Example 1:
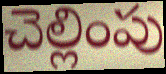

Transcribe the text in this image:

చెల్లింపు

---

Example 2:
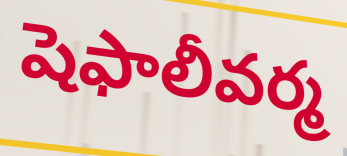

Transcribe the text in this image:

షెఫాలీవర్మ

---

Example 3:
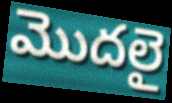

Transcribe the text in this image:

మొదలై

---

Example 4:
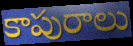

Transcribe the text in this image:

కాపురాలు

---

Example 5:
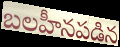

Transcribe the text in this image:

బలహీనపడిన